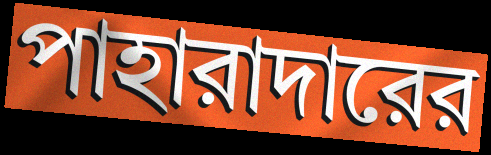
পাহারাদারের